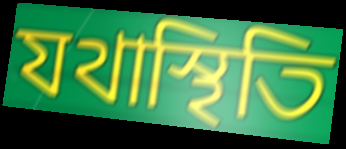
যথাস্থিতি